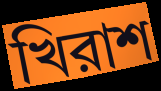
খিরাশ